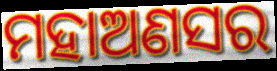
ମହାଅଣସର